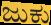
ಜುಕು